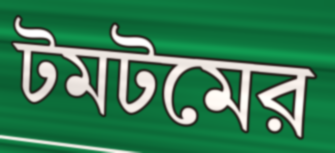
টমটমের